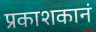
प्रकाशकानं